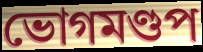
ভোগমণ্ডপ